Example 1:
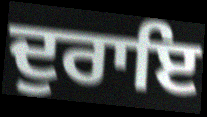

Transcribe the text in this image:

ਦੁਰਾਇ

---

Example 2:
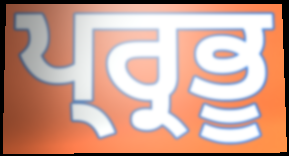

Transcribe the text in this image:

ਪ੍ਰ੍ਰਭੂ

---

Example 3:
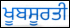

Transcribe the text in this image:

ਖੂਬਸੂਰਤੀ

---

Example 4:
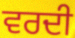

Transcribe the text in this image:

ਵਰਦੀ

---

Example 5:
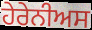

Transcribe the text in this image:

ਹੇਰੇਨੀਅਸ